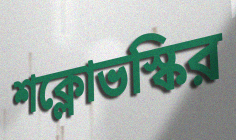
শক্লোভস্কির